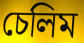
চেলিম